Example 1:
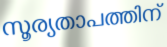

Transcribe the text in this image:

സൂര്യതാപത്തിന്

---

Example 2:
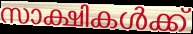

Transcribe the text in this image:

സാക്ഷികൾക്ക്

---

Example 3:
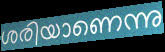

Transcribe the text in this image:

ശരിയാണെന്നു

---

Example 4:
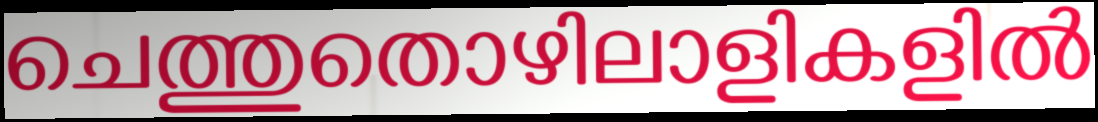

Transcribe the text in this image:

ചെത്തുതൊഴിലാളികളിൽ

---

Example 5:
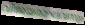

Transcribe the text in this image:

വിജയരാഘവനും